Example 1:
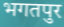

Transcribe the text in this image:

भगतपुर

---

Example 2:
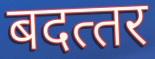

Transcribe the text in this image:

बदत्‍तर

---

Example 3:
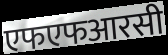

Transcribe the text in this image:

एफएफआरसी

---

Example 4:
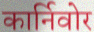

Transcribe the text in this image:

कार्निवोर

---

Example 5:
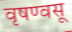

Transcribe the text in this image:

वृषण्वसू